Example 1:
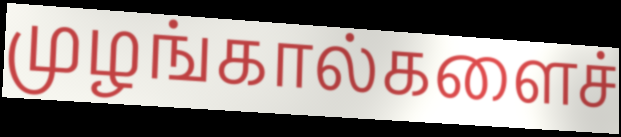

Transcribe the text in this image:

முழங்கால்களைச்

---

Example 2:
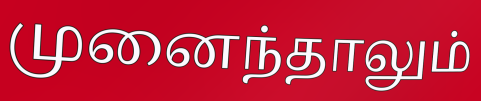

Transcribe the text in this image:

முனைந்தாலும்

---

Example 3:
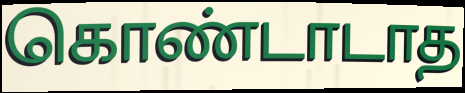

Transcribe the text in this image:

கொண்டாடாத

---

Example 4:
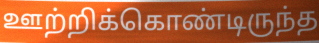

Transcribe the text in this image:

ஊற்றிக்கொண்டிருந்த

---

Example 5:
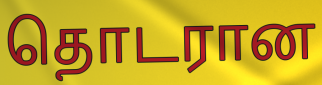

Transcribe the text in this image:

தொடரான